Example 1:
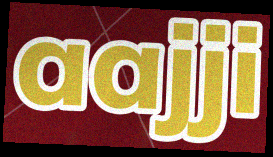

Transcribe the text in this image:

aajji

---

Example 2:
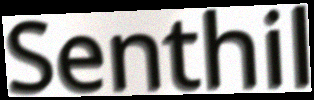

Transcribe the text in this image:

Senthil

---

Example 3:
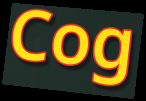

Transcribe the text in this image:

Cog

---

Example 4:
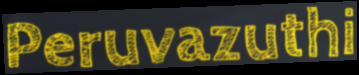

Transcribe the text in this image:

Peruvazuthi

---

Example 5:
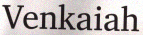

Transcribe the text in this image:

Venkaiah